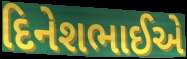
દિનેશભાઈએ